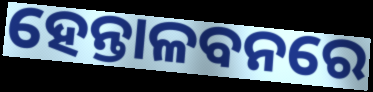
ହେନ୍ତାଳବନରେ